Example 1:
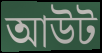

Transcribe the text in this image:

আউট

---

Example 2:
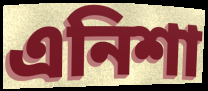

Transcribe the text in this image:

এনিশা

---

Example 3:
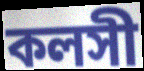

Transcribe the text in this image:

কলসী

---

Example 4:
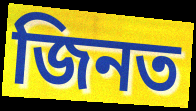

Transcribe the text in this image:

জিনত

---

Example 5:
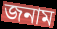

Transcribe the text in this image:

জনাম